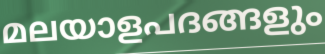
മലയാളപദങ്ങളും